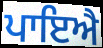
ਪਾਇਐ